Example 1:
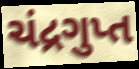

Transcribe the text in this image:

ચંદ્રગુપ્ત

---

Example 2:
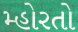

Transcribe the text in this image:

મ્હોરતો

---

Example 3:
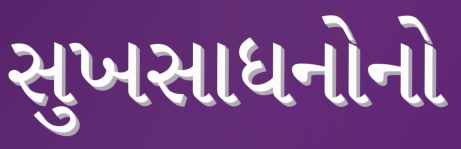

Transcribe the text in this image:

સુખસાધનોનો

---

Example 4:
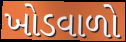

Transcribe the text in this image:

ખોડવાળો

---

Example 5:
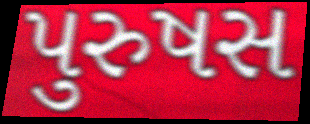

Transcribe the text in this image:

પુરુષસ